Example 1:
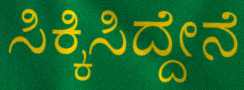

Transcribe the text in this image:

ಸಿಕ್ಕಿಸಿದ್ದೇನೆ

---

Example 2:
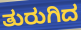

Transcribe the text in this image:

ತುರುಗಿದ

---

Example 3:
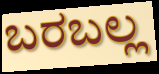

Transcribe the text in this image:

ಬರಬಲ್ಲ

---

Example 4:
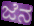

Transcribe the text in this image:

ಜೆನ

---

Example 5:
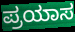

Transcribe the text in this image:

ಪ್ರಯಾಸ